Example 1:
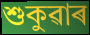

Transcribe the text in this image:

শুকুৱাৰ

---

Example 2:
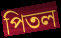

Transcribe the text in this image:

পিতল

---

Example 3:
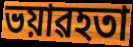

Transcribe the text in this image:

ভয়াৱহতা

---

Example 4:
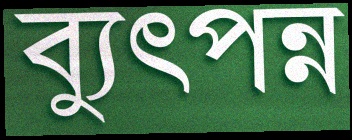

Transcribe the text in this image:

ব্যুৎপন্ন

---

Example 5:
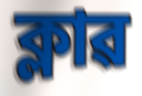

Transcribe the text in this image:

ক্লাৱ